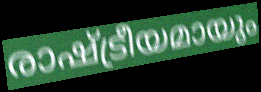
രാഷ്ട്രീയമായും